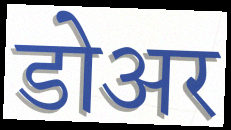
डोअर